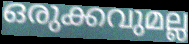
ഒരുക്കവുമല്ല